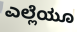
ಎಲ್ಲೆಯೂ